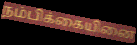
நம்பிக்கையினை